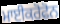
ਮਾਈਕਰੋਫੋਨ